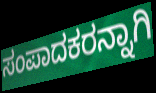
ಸಂಪಾದಕರನ್ನಾಗಿ